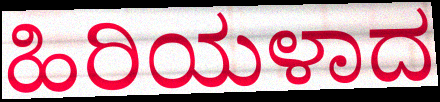
ಹಿರಿಯಳಾದ